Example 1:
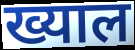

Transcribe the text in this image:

ख्याल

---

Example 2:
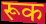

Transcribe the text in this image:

रूक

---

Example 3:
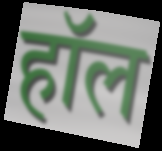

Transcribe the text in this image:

हॉल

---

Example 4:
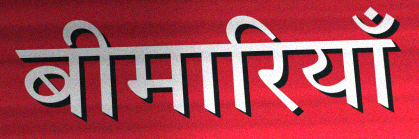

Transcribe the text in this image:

बीमारियाँ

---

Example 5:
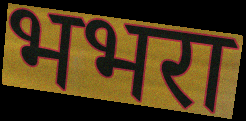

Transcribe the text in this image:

भभरा